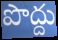
పొద్దు